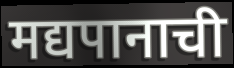
मद्यपानाची